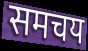
समचय